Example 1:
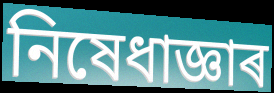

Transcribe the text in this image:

নিষেধাজ্ঞাৰ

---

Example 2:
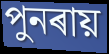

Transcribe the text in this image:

পুনৰায়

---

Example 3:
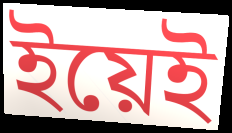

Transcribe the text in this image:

ইয়েই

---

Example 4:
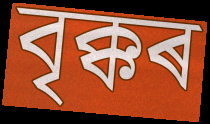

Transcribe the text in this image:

বৃক্কৰ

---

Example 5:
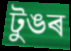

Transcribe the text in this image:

টুঙৰ